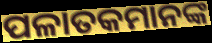
ପଳାତକମାନଙ୍କ